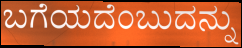
ಬಗೆಯದೆಂಬುದನ್ನು